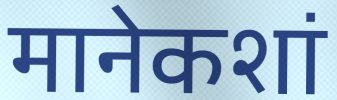
मानेकशां